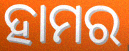
ହାମର